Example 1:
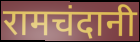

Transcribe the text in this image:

रामचंदानी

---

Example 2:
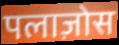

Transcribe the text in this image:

पलाज़ोस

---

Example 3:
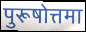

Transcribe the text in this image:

पुरूषोत्तमा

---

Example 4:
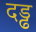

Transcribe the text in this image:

दड्ढ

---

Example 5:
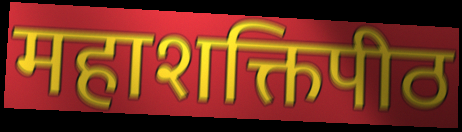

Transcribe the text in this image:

महाशक्तिपीठ